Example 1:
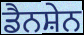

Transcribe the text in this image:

ਡੈਨਸ਼ੇਨ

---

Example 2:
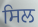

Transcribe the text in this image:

ਸਿਲ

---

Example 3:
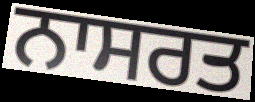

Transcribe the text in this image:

ਨਾਸਰਤ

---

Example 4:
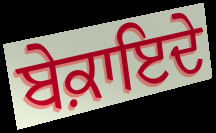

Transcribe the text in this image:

ਬੇਕ਼ਾਇਦੇ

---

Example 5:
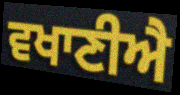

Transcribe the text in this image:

ਵਖਾਣੀਐ